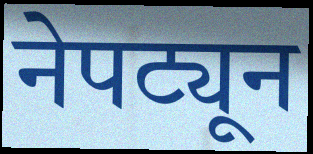
नेपट्यून